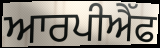
ਆਰਪੀਐੱਫ